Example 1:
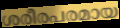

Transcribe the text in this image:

ശരീരപരമായ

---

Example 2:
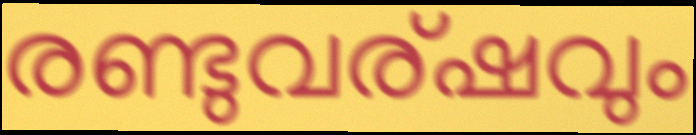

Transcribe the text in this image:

രണ്ടുവര്ഷവും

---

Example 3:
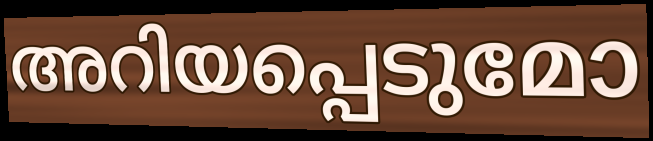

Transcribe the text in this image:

അറിയപ്പെടുമോ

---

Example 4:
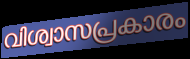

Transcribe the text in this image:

വിശ്വാസപ്രകാരം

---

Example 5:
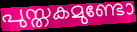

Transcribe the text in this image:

പുസ്തകമുണ്ടോ